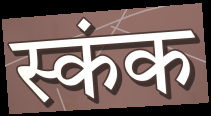
स्कंक